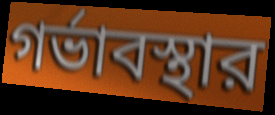
গর্ভাবস্থার